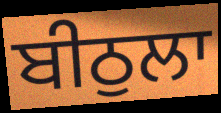
ਬੀਠੁਲਾ